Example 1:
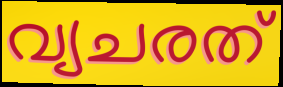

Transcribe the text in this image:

വ്യചരത്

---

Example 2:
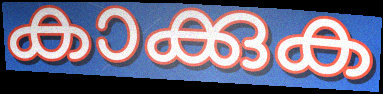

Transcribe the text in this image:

കാക്കുക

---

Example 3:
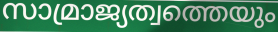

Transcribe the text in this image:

സാമ്രാജ്യത്വത്തെയും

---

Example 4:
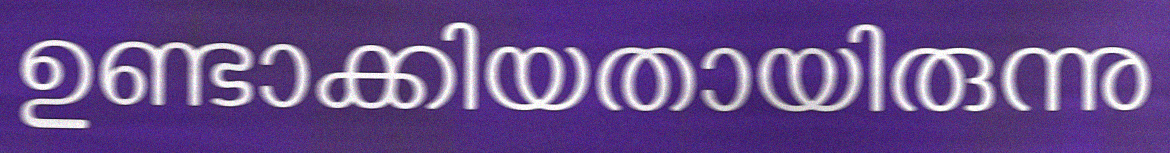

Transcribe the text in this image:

ഉണ്ടാക്കിയതായിരുന്നു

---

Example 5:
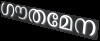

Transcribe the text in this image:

ഗൗതമേന